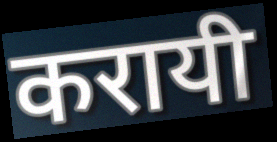
करायी